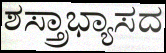
ಶಸ್ತ್ರಾಭ್ಯಾಸದ